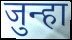
जुन्हा